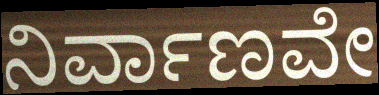
ನಿರ್ವಾಣವೇ